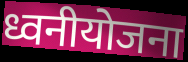
ध्वनीयोजना